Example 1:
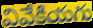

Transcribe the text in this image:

వివేకియగు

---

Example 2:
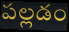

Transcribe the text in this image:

పల్లడం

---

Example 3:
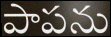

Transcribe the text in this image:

పాపను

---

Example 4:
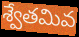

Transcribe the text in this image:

శ్వేతమివ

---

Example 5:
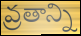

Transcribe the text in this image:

వ్రతాన్ని